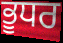
ਭੂਧਰ